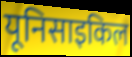
यूनिसाइकिल